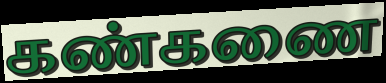
கண்கணை